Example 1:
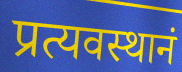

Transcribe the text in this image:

प्रत्यवस्थानं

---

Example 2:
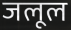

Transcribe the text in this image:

जलूल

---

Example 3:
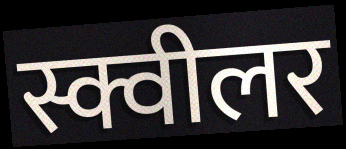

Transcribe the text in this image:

स्क्वीलर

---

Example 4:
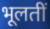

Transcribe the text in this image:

भूलतीं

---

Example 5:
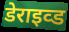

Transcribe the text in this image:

डेराइव्ड